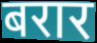
बरार